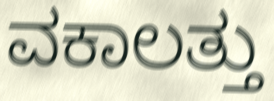
ವಕಾಲತ್ತು